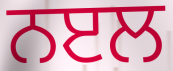
ਨੲਲ